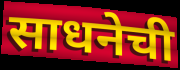
साधनेची